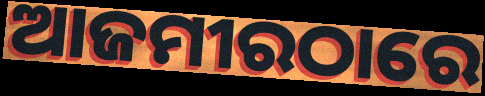
ଆଜମୀରଠାରେ